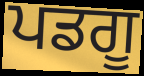
ਪਡਗੂ